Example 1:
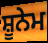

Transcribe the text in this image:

ਸ਼ੂਨੇਮ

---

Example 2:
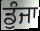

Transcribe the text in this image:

ਡੁੰਜਾ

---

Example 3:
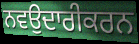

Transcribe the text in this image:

ਨਵਉਦਾਰੀਕਰਨ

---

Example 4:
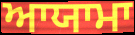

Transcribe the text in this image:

ਆਯਾਮਾ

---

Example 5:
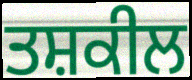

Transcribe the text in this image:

ਤਸ਼ਕੀਲ